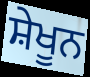
ਸ਼ੇਖੂਨ